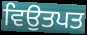
ਵਿਉਤਪਤ